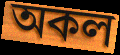
অকল